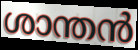
ശാന്തൻ